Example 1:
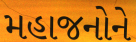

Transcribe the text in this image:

મહાજનોને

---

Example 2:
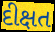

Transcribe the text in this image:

દીક્ષત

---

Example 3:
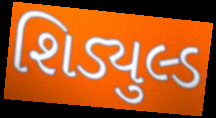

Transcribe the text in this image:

શિડ્યુલ્ડ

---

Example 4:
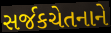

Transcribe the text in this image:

સર્જકચેતનાને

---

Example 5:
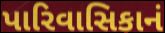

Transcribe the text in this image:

પારિવાસિકાનં